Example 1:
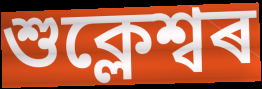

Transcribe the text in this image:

শুক্লেশ্বৰ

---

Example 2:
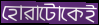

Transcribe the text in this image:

হোৱাটোকেই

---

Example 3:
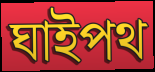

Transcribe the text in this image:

ঘাইপথ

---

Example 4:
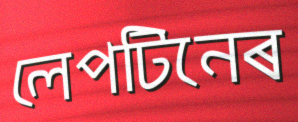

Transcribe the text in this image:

লেপটিনেৰ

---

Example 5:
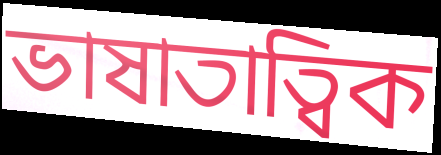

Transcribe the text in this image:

ভাষাতাত্বিক